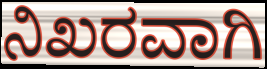
ನಿಖರವಾಗಿ